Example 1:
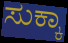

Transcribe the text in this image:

ಸುಕ್ಕಾ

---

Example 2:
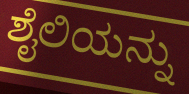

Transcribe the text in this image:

ಶೈಲಿಯನ್ನು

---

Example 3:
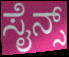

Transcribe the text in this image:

ಸೈನ್ಸ್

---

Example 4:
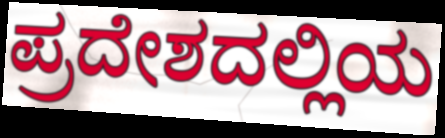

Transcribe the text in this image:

ಪ್ರದೇಶದಲ್ಲಿಯ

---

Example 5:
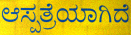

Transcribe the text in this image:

ಆಸ್ಪತ್ರೆಯಾಗಿದೆ